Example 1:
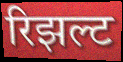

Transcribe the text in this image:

रिझल्ट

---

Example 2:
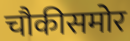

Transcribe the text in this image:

चौकीसमोर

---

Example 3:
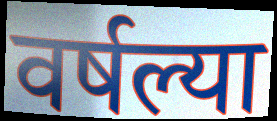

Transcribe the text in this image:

वर्षल्या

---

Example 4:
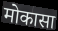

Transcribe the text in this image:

मोकासा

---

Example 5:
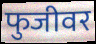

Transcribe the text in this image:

फुजीवर